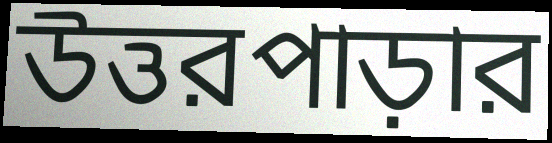
উত্তরপাড়ার